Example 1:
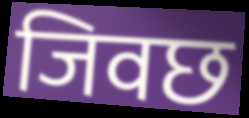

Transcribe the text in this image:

जिवछ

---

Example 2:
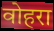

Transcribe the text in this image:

वोहरा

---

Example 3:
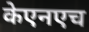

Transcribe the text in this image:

केएनएच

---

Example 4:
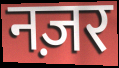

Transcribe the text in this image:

नज़र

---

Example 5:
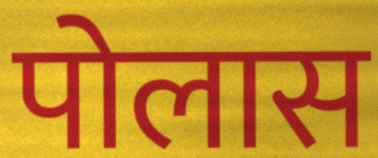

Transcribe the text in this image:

पोलास